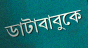
ডাটাবাবুকে